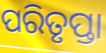
ପରିତୃପ୍ତା